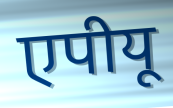
एपीयू